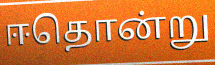
ஈதொன்று